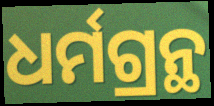
ଧର୍ମଗ୍ରନ୍ଥ